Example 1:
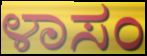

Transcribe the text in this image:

ಳಾಸಂ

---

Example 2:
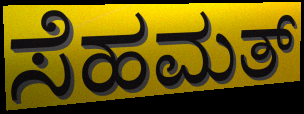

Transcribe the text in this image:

ಸೆಹಮತ್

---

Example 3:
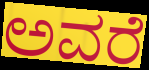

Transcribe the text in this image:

ಅವರೆ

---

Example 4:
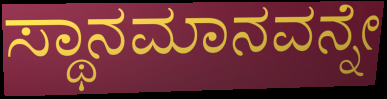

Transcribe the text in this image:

ಸ್ಥಾನಮಾನವನ್ನೇ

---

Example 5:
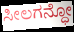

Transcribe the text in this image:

ಸೀಲಗನ್ಧೋ